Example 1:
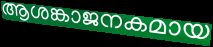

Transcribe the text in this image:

ആശങ്കാജനകമായ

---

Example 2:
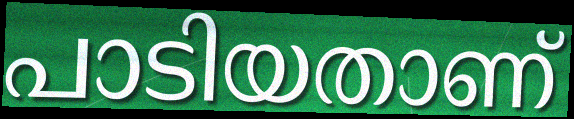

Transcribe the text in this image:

പാടിയതാണ്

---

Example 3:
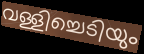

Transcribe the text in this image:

വള്ളിച്ചെടിയും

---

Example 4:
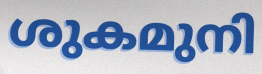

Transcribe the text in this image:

ശുകമുനി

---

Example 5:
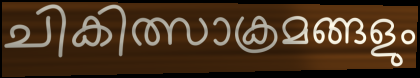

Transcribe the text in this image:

ചികിത്സാക്രമങ്ങളും